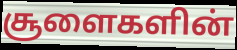
சூளைகளின்